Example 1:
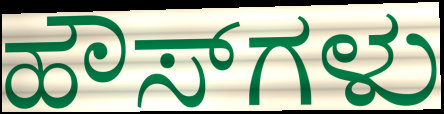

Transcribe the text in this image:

ಹೌಸ್‌ಗಳು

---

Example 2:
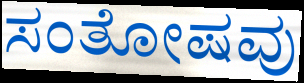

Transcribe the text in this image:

ಸಂತೋಷವು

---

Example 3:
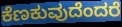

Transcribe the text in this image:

ಕೆಣಕುವುದೆಂದರೆ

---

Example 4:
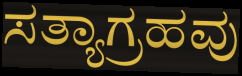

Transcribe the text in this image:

ಸತ್ಯಾಗ್ರಹವು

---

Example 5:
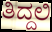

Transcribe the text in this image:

ತಿದ್ದಲಿ